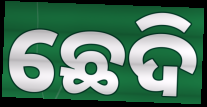
ଛେଦି